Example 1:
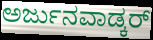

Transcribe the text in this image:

ಅರ್ಜುನವಾಡ್ಕರ್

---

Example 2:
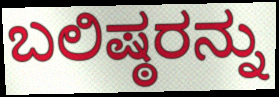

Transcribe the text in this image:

ಬಲಿಷ್ಠರನ್ನು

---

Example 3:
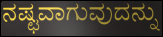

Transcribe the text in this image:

ನಷ್ಟವಾಗುವುದನ್ನು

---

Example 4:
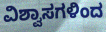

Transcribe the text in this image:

ವಿಶ್ವಾಸಗಳಿಂದ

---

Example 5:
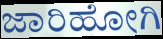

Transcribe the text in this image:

ಜಾರಿಹೋಗಿ